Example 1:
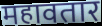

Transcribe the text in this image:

महावतार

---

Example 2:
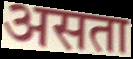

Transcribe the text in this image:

असता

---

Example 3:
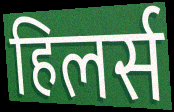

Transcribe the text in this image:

हिलर्स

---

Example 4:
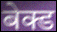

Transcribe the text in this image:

बेक्ड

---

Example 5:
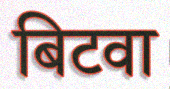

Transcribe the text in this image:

बिटवा